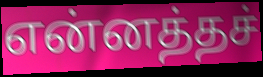
என்னத்தச்